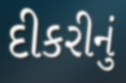
દીકરીનું